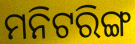
ମନିଟରିଙ୍ଗ